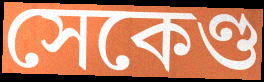
সেকেণ্ড